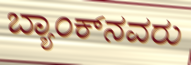
ಬ್ಯಾಂಕ್‌ನವರು